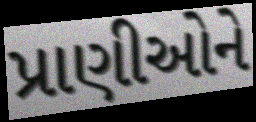
પ્રાણીઓને